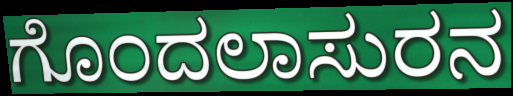
ಗೊಂದಲಾಸುರನ